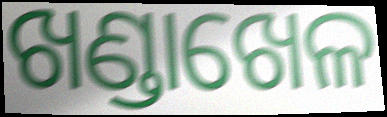
ଖଣ୍ଡାଖେଳ